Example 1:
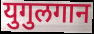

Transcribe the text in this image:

युगुलगान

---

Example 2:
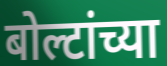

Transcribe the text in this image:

बोल्टांच्या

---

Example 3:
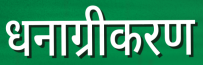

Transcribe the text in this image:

धनाग्रीकरण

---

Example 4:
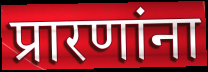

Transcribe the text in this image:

प्रारणांना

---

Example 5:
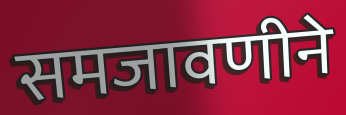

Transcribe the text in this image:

समजावणीने